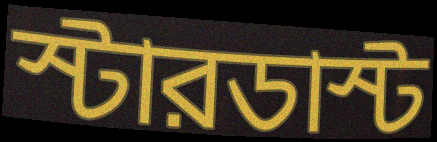
স্টারডাস্ট